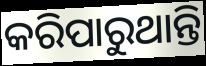
କରିପାରୁଥାନ୍ତି